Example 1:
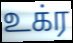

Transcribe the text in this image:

உக்ர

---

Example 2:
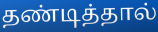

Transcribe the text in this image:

தண்டித்தால்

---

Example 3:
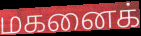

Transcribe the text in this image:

மகனைக்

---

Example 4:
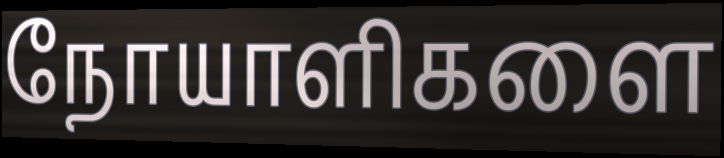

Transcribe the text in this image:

நோயாளிகளை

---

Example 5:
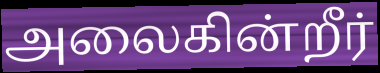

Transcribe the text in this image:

அலைகின்றீர்